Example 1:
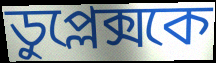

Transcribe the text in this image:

ডুপ্লেক্সকে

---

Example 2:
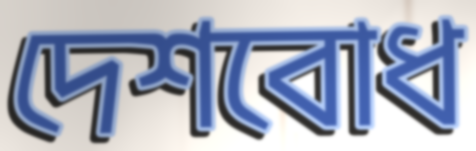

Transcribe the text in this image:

দেশবোধ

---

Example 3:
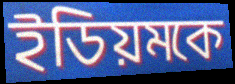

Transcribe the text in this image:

ইডিয়মকে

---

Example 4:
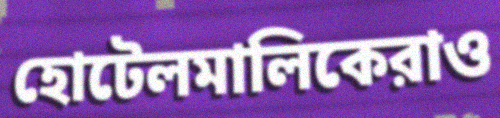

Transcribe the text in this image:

হোটেলমালিকেরাও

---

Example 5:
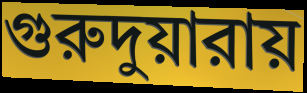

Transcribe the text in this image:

গুরুদুয়ারায়